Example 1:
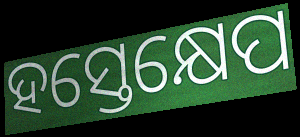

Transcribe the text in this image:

ହସ୍ତେକ୍ଷେପ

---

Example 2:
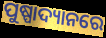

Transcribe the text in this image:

ପୁଷ୍ପାଦ୍ୟାନରେ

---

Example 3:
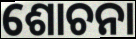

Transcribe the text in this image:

ଶୋଚନା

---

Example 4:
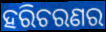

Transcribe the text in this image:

ହରିଚରଣର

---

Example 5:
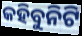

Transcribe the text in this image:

କହିବୁନିଟି